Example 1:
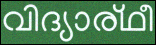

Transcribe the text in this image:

വിദ്യാര്ഥീ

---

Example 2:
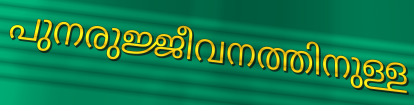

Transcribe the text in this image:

പുനരുജ്ജീവനത്തിനുള്ള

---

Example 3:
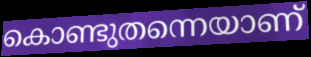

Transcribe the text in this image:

കൊണ്ടുതന്നെയാണ്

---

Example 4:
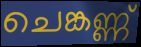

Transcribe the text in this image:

ചെങ്കണ്ണ്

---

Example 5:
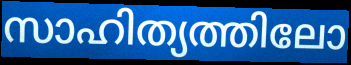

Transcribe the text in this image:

സാഹിത്യത്തിലോ